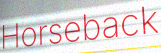
Horseback